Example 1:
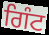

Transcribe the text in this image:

ਗਿੰਟ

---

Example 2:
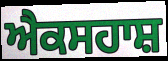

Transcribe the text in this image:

ਐਕਸਹਾਸ਼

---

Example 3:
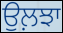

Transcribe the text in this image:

ਉਲ਼ਝਾ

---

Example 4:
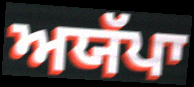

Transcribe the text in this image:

ਅਯੱਪਾ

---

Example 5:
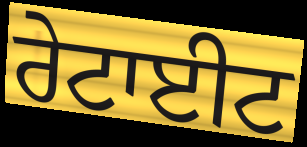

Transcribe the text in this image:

ਰੇਟਾਈਟ